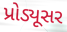
પ્રોડ્યૂસર